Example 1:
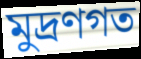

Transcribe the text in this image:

মুদ্রণগত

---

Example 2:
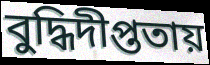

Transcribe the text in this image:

বুদ্ধিদীপ্ততায়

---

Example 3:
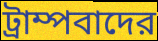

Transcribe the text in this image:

ট্রাম্পবাদের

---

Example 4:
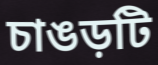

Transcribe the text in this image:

চাঙড়টি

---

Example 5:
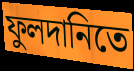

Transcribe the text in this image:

ফুলদানিতে